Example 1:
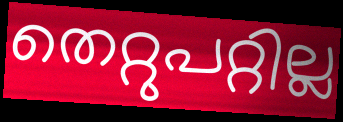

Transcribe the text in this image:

തെറ്റുപറ്റില്ല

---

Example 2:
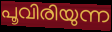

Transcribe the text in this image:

പൂവിരിയുന്ന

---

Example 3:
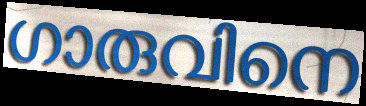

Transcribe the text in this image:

ഗാരുവിനെ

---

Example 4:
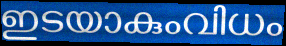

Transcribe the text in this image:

ഇടയാകുംവിധം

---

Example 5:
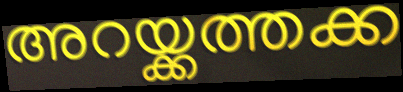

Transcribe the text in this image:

അറയ്ക്കത്തക്ക